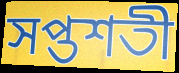
সপ্তশতী